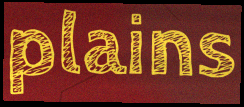
plains